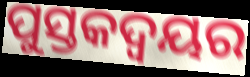
ପୁସ୍ତକଦ୍ୱୟର